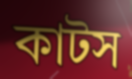
কাটস